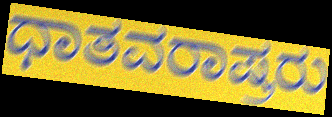
ಧಾತವರಾಷ್ರರು